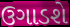
ઉગાડશે